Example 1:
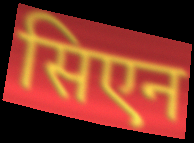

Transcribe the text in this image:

सिएन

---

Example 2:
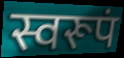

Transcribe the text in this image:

स्वरूपं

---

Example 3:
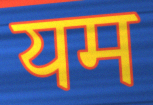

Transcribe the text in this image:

यम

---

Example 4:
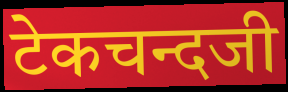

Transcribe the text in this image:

टेकचन्दजी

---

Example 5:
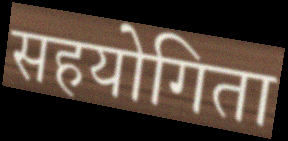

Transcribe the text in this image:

सहयोगिता